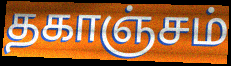
தகாஞ்சம்